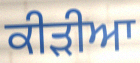
ਕੀੜੀਆ